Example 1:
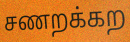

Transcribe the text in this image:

சணறக்கற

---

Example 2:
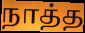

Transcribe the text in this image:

நாத்த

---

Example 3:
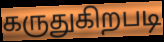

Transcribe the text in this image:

கருதுகிறபடி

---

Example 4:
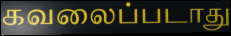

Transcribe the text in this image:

கவலைப்படாது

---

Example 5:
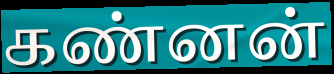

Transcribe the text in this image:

கண்னன்